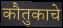
कौतुकाचे